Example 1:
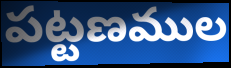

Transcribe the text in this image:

పట్టణముల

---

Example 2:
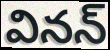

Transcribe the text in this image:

వినన్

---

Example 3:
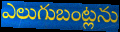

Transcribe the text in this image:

ఎలుగుబంట్లను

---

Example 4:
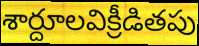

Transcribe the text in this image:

శార్దూలవిక్రీడితపు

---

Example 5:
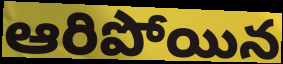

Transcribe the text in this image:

ఆరిపోయిన